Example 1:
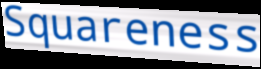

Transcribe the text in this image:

Squareness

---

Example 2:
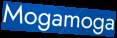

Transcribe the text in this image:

Mogamoga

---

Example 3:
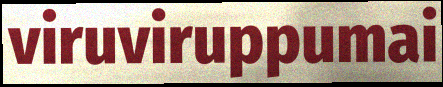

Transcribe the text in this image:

viruviruppumai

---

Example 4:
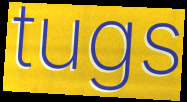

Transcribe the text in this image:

tugs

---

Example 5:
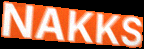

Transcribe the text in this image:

NAKKS